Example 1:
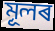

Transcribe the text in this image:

মূলৰ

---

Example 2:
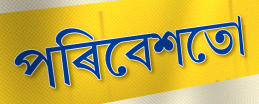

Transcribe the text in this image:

পৰিবেশতো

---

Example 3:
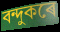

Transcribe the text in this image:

বন্দুকৰে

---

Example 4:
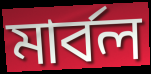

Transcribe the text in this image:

মাৰ্বল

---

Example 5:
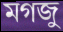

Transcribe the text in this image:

মগজু